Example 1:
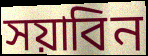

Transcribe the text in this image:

সয়াবিন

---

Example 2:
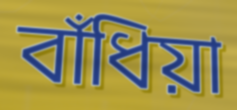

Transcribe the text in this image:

বাঁধিয়া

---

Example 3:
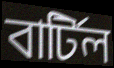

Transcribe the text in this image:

বার্টিল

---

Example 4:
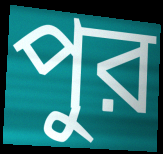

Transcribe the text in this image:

পুর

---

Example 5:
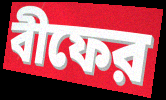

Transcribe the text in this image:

বীফের